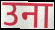
उना